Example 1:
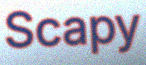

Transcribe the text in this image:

Scapy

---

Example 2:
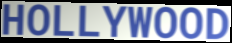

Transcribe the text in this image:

HOLLYWOOD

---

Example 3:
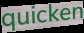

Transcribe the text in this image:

quicken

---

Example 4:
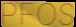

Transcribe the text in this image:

PFOS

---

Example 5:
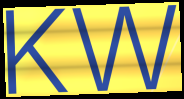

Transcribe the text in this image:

KW